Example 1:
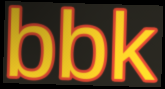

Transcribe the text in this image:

bbk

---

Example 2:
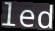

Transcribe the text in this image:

led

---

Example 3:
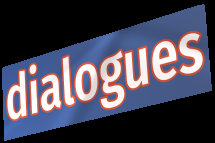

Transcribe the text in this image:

dialogues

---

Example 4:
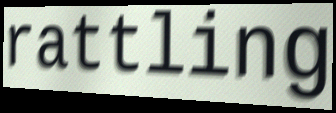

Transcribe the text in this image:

rattling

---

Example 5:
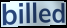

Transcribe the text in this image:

billed